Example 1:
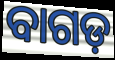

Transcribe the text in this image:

ବାଗଡ଼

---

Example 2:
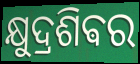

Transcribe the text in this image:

କ୍ଷୁଦ୍ରଶିଵର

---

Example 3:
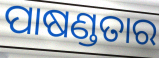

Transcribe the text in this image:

ପାଷଣ୍ଡତାର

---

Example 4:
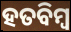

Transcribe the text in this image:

ହତବିମ୍ବ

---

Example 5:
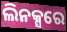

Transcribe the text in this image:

ଲିନକ୍ସରେ